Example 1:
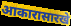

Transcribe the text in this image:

आकारासारखे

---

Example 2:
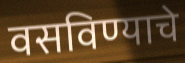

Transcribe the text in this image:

वसविण्याचे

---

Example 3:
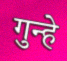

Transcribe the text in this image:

गुन्हे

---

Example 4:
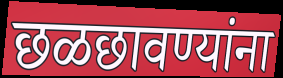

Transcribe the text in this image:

छळछावण्यांना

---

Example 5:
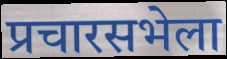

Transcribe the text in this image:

प्रचारसभेला